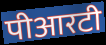
पीआरटी